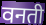
वनती